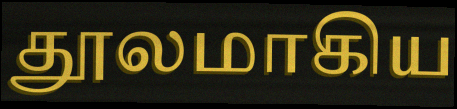
தூலமாகிய